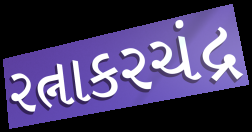
રત્નાકરચંદ્ર